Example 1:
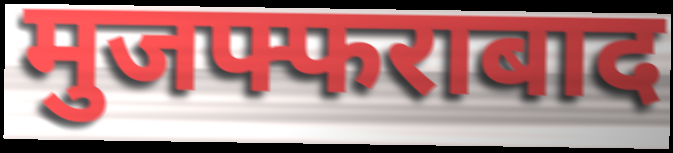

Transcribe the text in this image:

मुजफ्फराबाद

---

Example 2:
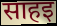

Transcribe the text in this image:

साहइ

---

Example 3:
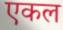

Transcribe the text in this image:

एकल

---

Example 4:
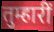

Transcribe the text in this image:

तुम्हारीं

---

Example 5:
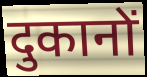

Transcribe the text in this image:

दुकानों